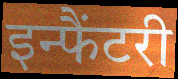
इन्फैंटरी